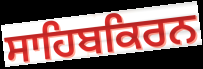
ਸਾਹਿਬਕਿਰਨ